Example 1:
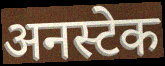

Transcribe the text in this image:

अनस्टेक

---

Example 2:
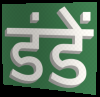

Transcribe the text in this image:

डंडें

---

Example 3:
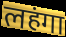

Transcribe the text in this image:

लहंगा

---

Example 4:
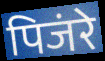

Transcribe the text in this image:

पिजंरे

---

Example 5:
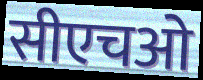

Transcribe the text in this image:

सीएचओ